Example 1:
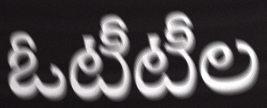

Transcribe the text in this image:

ఓటీటీల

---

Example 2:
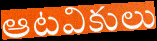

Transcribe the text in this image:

ఆటవికులు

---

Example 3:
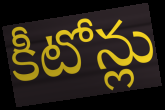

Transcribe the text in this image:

కీటోన్లు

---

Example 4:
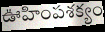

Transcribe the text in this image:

ఊహింపశక్యం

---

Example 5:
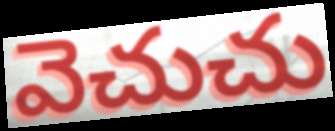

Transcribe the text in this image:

వెచుచు